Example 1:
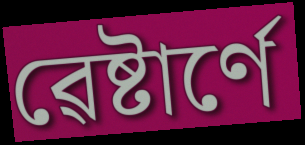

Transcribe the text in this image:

ৱেষ্টাৰ্ণে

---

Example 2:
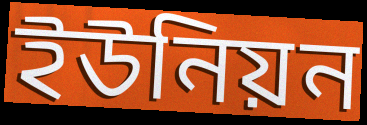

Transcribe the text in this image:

ইউনিয়ন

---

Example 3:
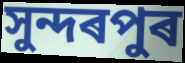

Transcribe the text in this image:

সুন্দৰপুৰ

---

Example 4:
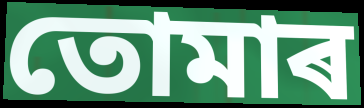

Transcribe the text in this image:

তোমাৰ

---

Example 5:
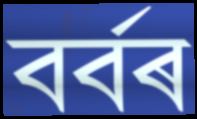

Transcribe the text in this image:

বৰ্বৰ